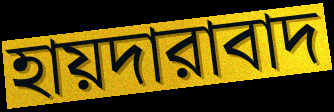
হায়দারাবাদ